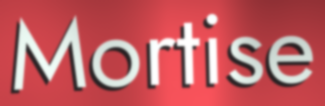
Mortise